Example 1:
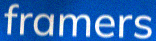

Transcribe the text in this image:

framers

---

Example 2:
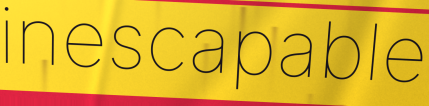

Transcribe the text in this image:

inescapable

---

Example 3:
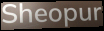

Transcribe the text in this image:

Sheopur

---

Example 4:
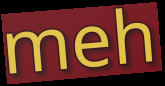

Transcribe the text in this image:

meh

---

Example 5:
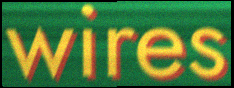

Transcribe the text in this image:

wires